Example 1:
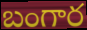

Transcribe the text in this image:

బంగార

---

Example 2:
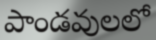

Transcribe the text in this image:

పాండవులలో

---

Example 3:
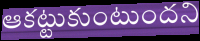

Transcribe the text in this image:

ఆకట్టుకుంటుందని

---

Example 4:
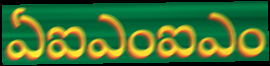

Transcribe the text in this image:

ఏఐఎంఐఎం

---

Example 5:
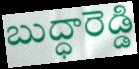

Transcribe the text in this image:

బుద్ధారెడ్డి